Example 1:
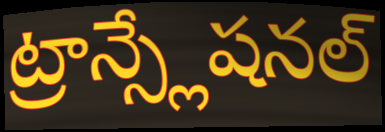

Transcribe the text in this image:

ట్రాన్స్లేషనల్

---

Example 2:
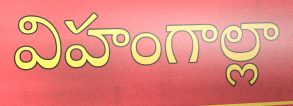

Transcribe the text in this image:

విహంగాల్లా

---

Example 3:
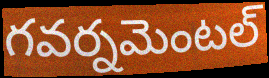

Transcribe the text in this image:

గవర్నమెంటల్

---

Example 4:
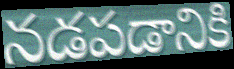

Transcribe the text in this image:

నడపడానికి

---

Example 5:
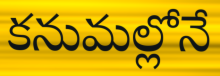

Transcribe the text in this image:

కనుమల్లోనే